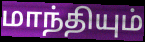
மாந்தியும்